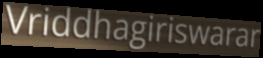
Vriddhagiriswarar